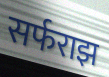
सर्फराझ